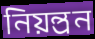
নিয়ন্ত্ৰন